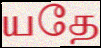
யதே